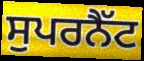
ਸੁਪਰਨੈੱਟ